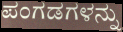
ಪಂಗಡಗಳನ್ನು